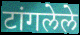
टांगलेले